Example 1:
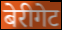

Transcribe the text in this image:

बेरीगेट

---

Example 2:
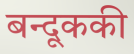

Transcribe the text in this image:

बन्दूककी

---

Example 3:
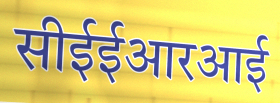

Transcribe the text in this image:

सीईईआरआई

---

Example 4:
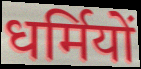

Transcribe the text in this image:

धर्मियों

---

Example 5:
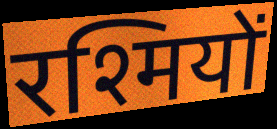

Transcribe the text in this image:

रश्मियों